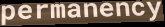
permanency